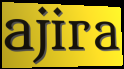
ajira